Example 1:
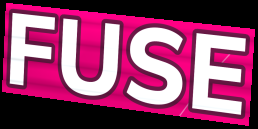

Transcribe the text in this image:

FUSE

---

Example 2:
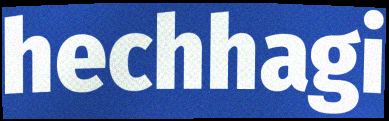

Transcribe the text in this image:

hechhagi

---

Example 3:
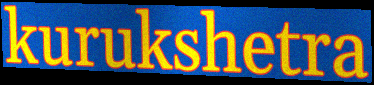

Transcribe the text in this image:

kurukshetra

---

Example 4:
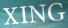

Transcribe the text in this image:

XING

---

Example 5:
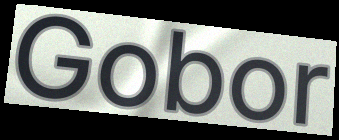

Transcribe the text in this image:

Gobor